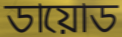
ডায়োড